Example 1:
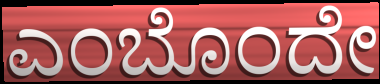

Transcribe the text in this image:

ಎಂಬೊಂದೇ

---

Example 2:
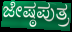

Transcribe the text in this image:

ಜೇಷ್ಠಪುತ್ರ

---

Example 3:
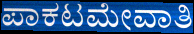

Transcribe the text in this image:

ಪಾಕಟಮೇವಾತಿ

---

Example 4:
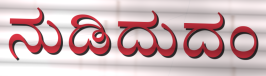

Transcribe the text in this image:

ನುಡಿದುದಂ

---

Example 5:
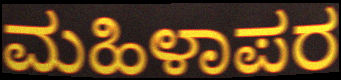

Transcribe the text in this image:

ಮಹಿಳಾಪರ